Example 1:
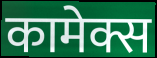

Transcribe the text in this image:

कामेक्स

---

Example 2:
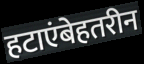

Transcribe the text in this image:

हटाएंबेहतरीन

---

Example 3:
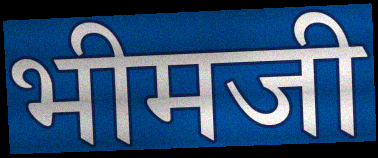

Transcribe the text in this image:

भीमजी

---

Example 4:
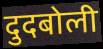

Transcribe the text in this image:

दुदबोली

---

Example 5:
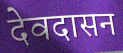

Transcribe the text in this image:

देवदासन